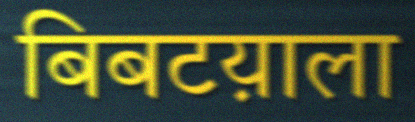
बिबटय़ाला